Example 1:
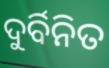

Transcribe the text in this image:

ଦୁର୍ବିନିତ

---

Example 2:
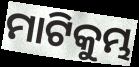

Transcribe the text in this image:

ମାଟିକୁମ୍ଭ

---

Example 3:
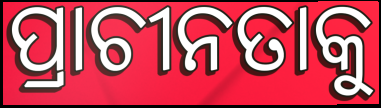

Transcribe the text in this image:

ପ୍ରାଚୀନତାକୁ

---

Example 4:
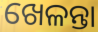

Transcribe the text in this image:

ଖେଳନ୍ତା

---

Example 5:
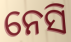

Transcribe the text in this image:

ନେସି